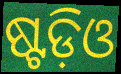
ଷ୍ଟଡ଼ିଓ